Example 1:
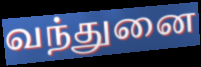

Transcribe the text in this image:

வந்துனை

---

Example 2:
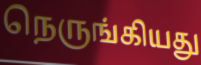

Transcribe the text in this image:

நெருங்கியது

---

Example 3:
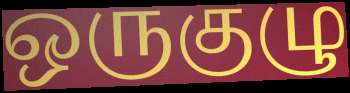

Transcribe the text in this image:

ஒருகுழு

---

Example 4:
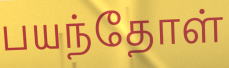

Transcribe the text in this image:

பயந்தோள்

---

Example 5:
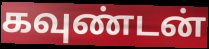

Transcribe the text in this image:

கவுண்டன்